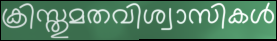
ക്രിസ്തുമതവിശ്വാസികൾ